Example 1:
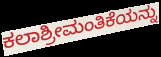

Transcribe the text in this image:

ಕಲಾಶ್ರೀಮಂತಿಕೆಯನ್ನು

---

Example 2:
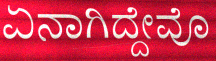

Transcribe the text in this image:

ಏನಾಗಿದ್ದೇವೊ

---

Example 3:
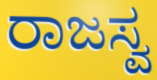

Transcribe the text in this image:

ರಾಜಸ್ವ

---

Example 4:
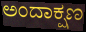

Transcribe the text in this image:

ಅಂದಾಕ್ಷಣ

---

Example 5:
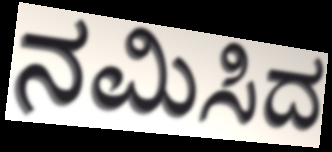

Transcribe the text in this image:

ನಮಿಸಿದ